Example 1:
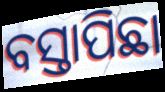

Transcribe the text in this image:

ବସ୍ତାପିଛା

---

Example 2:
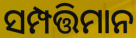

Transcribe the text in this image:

ସମ୍ପତ୍ତିମାନ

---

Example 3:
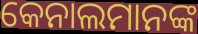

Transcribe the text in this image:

କେନାଲମାନଙ୍କ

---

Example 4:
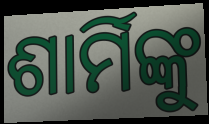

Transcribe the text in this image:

ଶାର୍ମିଙ୍କୁ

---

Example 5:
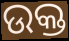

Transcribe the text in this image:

ଉକ୍ତ